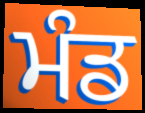
ਮੰਡ